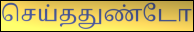
செய்ததுண்டோ